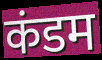
कंडम